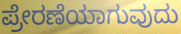
ಪ್ರೇರಣೆಯಾಗುವುದು